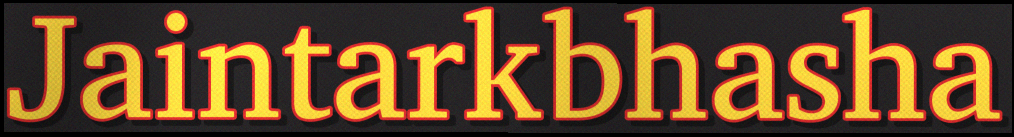
Jaintarkbhasha